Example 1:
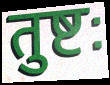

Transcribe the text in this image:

तुष्टः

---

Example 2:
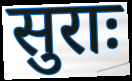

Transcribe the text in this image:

सुराः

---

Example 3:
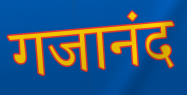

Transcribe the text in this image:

गजानंद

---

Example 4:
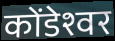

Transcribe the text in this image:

कोंडेश्वर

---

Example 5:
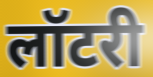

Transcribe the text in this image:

लॉटरी